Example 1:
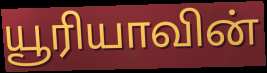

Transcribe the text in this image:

யூரியாவின்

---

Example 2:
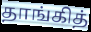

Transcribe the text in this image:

தாங்கித்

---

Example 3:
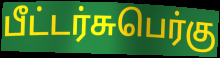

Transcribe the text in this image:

பீட்டர்சுபெர்கு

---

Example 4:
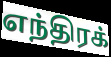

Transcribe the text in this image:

எந்திரக்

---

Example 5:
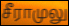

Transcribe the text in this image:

சீராமுலு